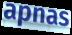
apnas